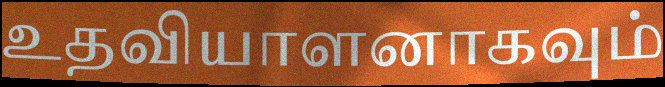
உதவியாளனாகவும்